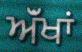
ਅੱਂਖਾਂ